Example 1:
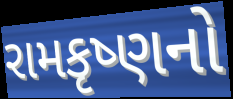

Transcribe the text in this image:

રામકૃષ્ણનો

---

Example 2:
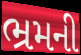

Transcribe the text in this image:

ભ્રમની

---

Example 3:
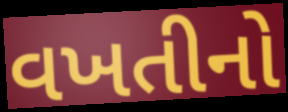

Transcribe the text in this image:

વખતીનો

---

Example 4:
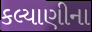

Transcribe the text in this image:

કલ્યાણીના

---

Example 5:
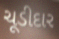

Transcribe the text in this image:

ચૂડીદાર